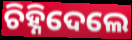
ଚିହ୍ନିଦେଲେ